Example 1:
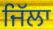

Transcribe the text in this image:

ਜਿੱਲਾ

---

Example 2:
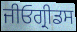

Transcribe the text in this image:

ਜੀਓਗ੍ਰੀਡਸ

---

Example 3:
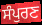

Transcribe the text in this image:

ਸੰਪੁਰਣ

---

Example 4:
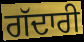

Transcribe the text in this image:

ਗੱਦਾਰੀ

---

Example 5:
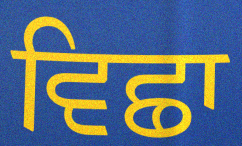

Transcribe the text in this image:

ਵਿਛਾ